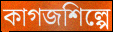
কাগজশিল্পে